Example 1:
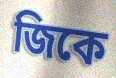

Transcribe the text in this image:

জিকে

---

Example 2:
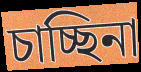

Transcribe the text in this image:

চাচ্ছিনা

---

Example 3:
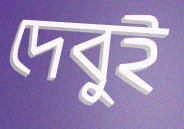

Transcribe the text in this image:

দেবুই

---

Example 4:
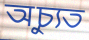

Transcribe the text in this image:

অচ্যুত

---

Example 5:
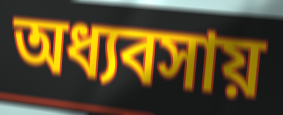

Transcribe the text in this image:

অধ্যবসায়